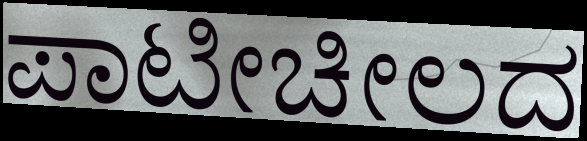
ಪಾಟೀಚೀಲದ